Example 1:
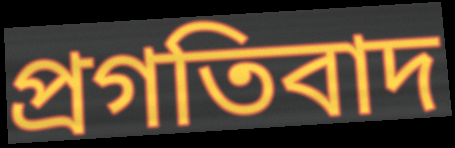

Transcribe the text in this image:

প্রগতিবাদ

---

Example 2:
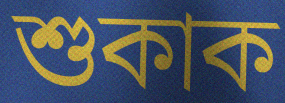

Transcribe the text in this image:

শুকাক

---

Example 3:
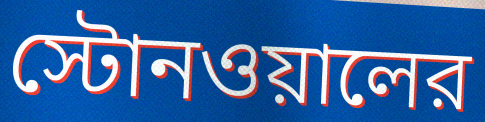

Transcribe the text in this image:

স্টোনওয়ালের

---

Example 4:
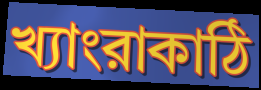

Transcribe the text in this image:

খ্যাংরাকাঠি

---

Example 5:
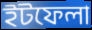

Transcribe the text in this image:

ইটফেলা